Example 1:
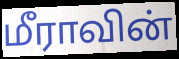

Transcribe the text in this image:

மீராவின்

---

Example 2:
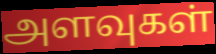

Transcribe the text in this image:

அளவுகள்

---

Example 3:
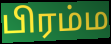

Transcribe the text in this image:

பிரம்ம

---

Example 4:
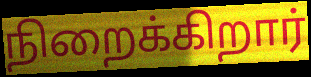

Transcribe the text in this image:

நிறைக்கிறார்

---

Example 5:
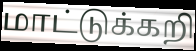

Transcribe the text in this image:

மாட்டுக்கறி